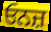
ਓਨਜ਼